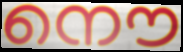
നൌ